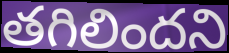
తగిలిందని